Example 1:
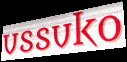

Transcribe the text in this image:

ussuko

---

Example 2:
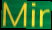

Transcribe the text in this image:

Mir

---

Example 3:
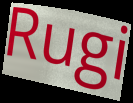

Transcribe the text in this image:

Rugi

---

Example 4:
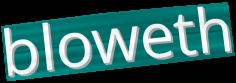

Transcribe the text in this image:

bloweth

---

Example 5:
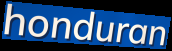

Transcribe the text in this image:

honduran